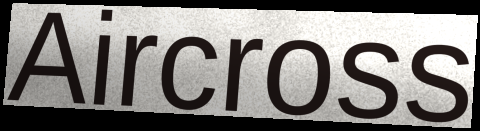
Aircross